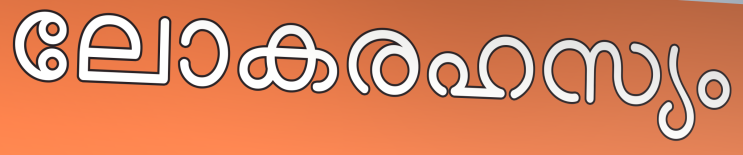
ലോകരഹസ്യം